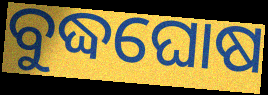
ବୁଦ୍ଧଘୋଷ